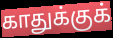
காதுக்குக்